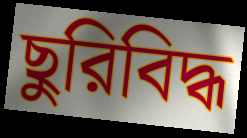
ছুরিবিদ্ধ